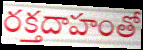
రక్తదాహంతో